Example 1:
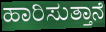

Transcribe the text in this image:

ಹಾರಿಸುತ್ತಾನೆ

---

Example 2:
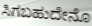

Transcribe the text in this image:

ಸಿಗಬಹುದೇನೊ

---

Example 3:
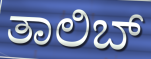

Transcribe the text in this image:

ತಾಲಿಬ್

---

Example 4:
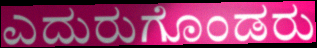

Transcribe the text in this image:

ಎದುರುಗೊಂಡರು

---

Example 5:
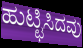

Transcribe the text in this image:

ಹುಟ್ಟಿಸಿದವು